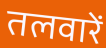
तलवारें